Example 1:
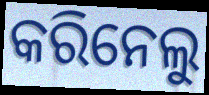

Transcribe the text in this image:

କରିନେଲୁ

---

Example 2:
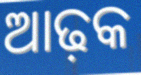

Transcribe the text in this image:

ଆଢ଼କ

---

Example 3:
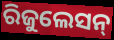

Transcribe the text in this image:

ରିଜୁଲେସନ୍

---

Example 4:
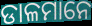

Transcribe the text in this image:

ଡାଳମାନେ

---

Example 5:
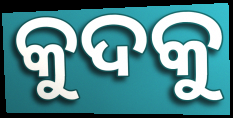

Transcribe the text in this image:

କୁଦକୁ